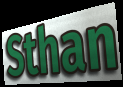
Sthan